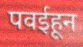
पवईहून